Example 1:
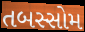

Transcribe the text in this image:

તબસ્સોમ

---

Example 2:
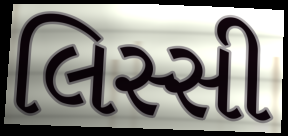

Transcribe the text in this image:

લિસ્સી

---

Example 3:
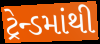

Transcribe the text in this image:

ટ્રેન્ડમાંથી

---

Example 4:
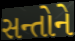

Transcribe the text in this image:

સન્તોને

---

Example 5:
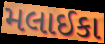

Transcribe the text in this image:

મલાઈકા